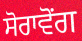
ਸੋਰਾਵੋਂਗ